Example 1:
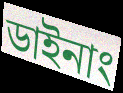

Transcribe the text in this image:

ডাইনাং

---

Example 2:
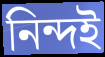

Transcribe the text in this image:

নিন্দই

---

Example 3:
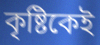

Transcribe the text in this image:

কৃষ্টিকেই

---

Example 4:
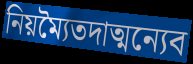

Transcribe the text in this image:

নিয়ম্যৈতদাত্মন্যেব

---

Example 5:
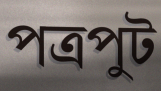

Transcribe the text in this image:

পত্রপুট